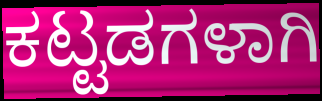
ಕಟ್ಟಡಗಳಾಗಿ